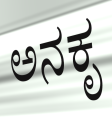
ಅನಕೃ